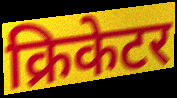
क्रिकेटर